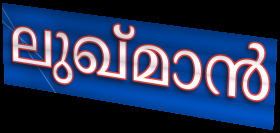
ലുഖ്മാൻ